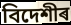
বিদেশীৰ